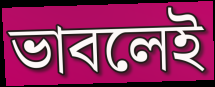
ভাবলেই